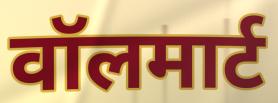
वॉलमार्ट